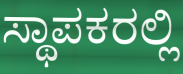
ಸ್ಥಾಪಕರಲ್ಲಿ